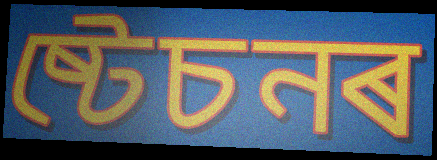
ষ্টেচনৰ